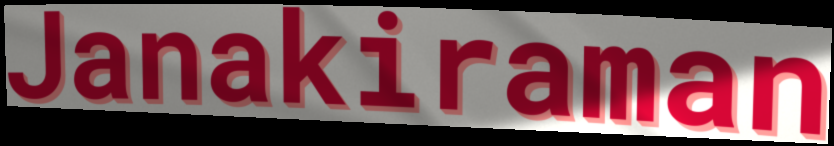
Janakiraman